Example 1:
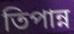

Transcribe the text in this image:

তিপান্ন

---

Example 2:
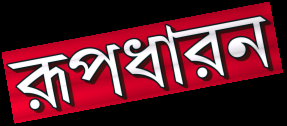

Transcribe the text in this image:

রূপধারন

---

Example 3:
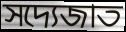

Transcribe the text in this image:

সদ্যেজাত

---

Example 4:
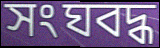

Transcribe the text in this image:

সংঘবদ্ধ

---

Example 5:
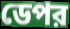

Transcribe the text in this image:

ডেপর